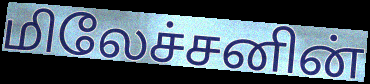
மிலேச்சனின்